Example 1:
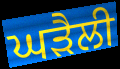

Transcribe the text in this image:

ਘੜੈਲੀ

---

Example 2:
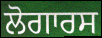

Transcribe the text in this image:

ਲੋਗਾਰਸ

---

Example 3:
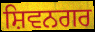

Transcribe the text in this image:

ਸ਼ਿਵਨਗਰ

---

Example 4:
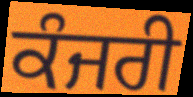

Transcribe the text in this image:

ਕੰਜਰੀ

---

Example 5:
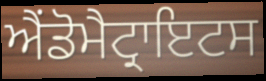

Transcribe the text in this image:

ਐਂਡੋਮੈਟ੍ਰਾਇਟਸ